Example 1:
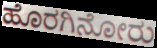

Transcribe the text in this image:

ಹೊರಗಿನೋರು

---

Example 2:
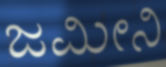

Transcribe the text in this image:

ಜಮೀನಿ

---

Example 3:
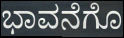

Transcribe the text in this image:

ಭಾವನೆಗೊ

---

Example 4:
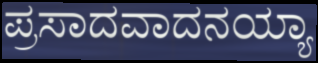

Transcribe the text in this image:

ಪ್ರಸಾದವಾದನಯ್ಯಾ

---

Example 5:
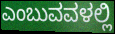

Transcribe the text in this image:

ಎಂಬುವವಳಲ್ಲಿ